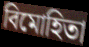
বিমোহিতা